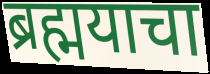
ब्रह्मयाचा